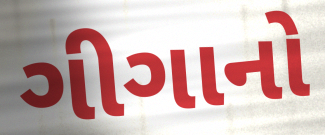
ગીગાનો